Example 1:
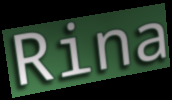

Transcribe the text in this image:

Rina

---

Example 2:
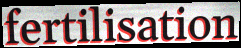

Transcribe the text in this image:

fertilisation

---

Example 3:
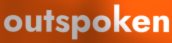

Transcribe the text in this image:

outspoken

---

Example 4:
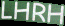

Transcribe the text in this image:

LHRH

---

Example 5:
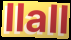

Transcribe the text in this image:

llall